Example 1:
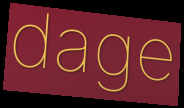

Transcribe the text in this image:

dage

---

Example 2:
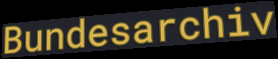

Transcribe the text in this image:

Bundesarchiv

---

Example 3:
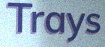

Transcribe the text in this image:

Trays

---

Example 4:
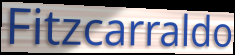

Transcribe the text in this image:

Fitzcarraldo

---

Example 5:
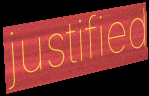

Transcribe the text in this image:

justified